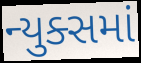
ન્યુક્સમાં